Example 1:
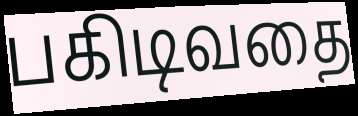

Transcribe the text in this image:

பகிடிவதை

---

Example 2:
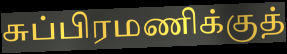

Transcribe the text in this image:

சுப்பிரமணிக்குத்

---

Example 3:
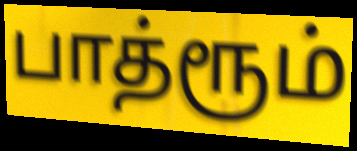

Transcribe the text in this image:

பாத்ரூம்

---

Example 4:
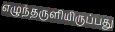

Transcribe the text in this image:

எழுந்தருளியிருப்பது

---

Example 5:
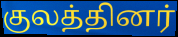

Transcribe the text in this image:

குலத்தினர்